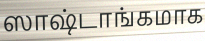
ஸாஷ்டாங்கமாக